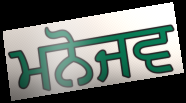
ਮਨੋਜਵ